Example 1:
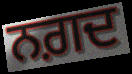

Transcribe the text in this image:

ਨਗ਼ਦ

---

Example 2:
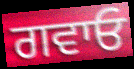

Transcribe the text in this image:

ਗਵਾਓ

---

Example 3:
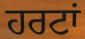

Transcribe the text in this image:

ਹਰਟਾਂ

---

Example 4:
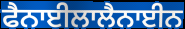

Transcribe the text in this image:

ਫੈਨਾਈਲਾਲੈਨਾਈਨ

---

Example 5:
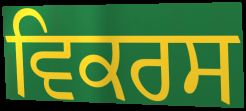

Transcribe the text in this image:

ਵਿਕਰਸ